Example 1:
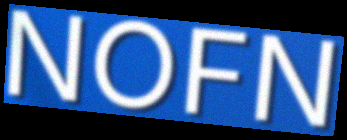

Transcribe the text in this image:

NOFN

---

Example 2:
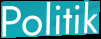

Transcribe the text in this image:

Politik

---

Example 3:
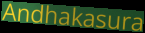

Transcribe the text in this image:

Andhakasura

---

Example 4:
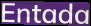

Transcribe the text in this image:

Entada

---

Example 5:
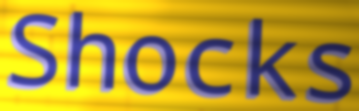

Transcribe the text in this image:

Shocks